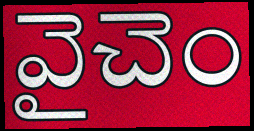
వైచెం